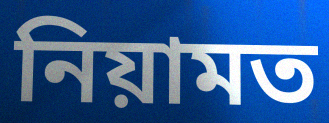
নিয়ামত